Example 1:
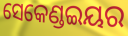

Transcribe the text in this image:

ସେକେଣ୍ଡଇୟର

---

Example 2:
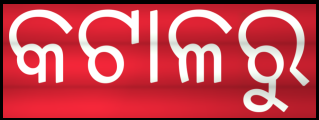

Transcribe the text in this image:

କଟାଳରୁ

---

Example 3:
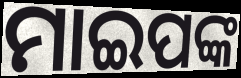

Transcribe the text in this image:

ମାଇପଙ୍କ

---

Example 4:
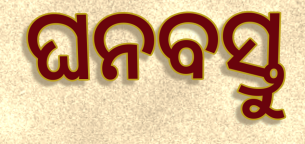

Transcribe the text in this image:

ଘନବସ୍ତୁ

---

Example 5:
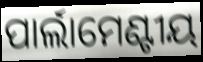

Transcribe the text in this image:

ପାର୍ଲାମେଣ୍ଟୀୟ